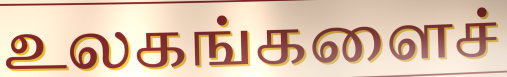
உலகங்களைச்